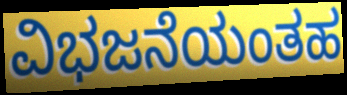
ವಿಭಜನೆಯಂತಹ